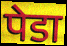
पेडा